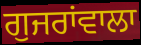
ਗੁਜਰਾਂਵਾਲਾ